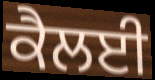
ਕੈਲਈ